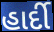
હાર્દી